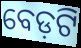
ବେଡ଼ଟି